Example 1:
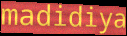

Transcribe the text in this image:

madidiya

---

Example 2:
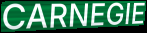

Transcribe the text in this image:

CARNEGIE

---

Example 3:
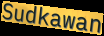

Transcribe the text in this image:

Sudkawan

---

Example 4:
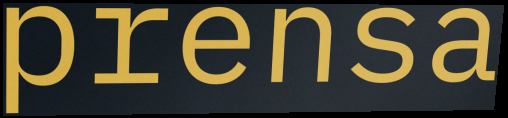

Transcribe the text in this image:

prensa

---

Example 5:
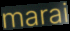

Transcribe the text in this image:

marai